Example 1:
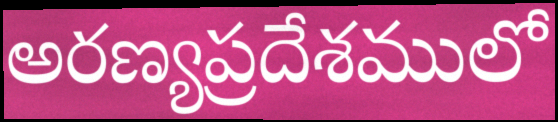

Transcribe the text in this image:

అరణ్యప్రదేశములో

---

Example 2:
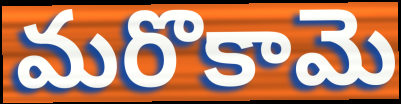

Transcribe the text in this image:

మరొకామె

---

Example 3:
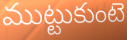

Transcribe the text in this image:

ముట్టుకుంటె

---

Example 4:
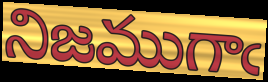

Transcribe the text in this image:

నిజముగాఁ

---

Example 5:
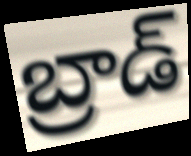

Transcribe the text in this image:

బ్రాడ్